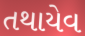
તથાયેવ